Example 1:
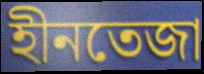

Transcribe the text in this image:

হীনতেজা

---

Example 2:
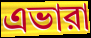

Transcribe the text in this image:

এভারা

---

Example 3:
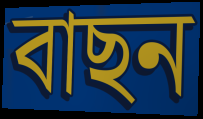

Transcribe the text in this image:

বাছন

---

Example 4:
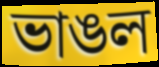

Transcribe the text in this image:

ভাঙল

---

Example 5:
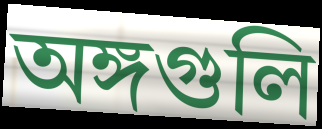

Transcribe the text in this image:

অঙ্গগুলি